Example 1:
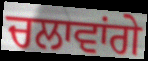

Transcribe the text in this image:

ਚਲਾਵਾਂਗੇ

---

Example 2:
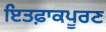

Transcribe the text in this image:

ਇਤਫ਼ਾਕਪੂਰਣ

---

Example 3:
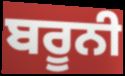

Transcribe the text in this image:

ਬਰੂਨੀ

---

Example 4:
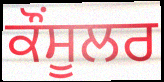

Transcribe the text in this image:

ਕੌਂਸੂਲਰ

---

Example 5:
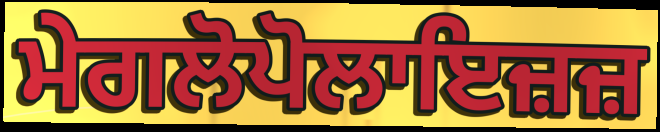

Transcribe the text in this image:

ਮੇਗਲੋਪੋਲਾਇਜ਼ਜ਼